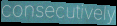
consecutively